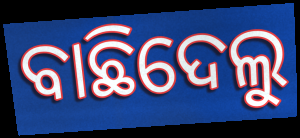
ବାଛିଦେଲୁ